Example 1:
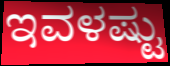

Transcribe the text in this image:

ಇವಳಷ್ಟು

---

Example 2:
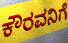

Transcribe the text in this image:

ಕೌರವನಿಗೆ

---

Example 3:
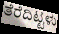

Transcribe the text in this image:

ತೆರೆದಿಟ್ಟಳು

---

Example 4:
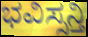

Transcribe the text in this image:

ಭವಿಸ್ಸನ್ತಿ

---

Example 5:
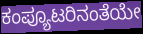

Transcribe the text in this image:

ಕಂಪ್ಯೂಟರಿನಂತೆಯೇ